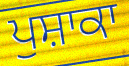
ਪੁਸ਼ਾਕਾ